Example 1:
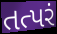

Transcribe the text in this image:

તત્પરં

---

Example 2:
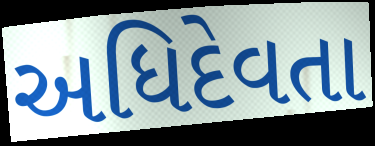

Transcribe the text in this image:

અધિદેવતા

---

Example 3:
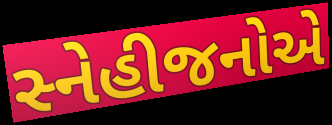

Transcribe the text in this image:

સ્નેહીજનોએ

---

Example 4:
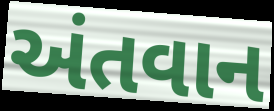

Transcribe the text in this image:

અંતવાન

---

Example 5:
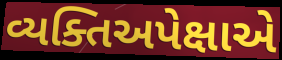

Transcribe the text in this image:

વ્યક્તિઅપેક્ષાએ